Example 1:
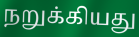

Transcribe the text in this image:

நறுக்கியது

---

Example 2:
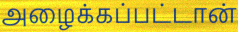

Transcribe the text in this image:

அழைக்கப்பட்டான்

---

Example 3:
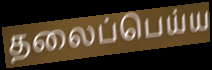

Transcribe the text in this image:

தலைப்பெய்ய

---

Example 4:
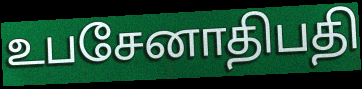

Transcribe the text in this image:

உபசேனாதிபதி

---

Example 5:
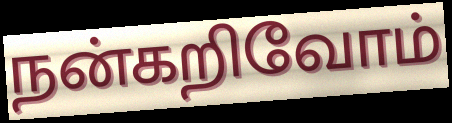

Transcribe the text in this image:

நன்கறிவோம்